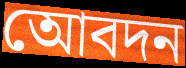
আেবদন